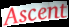
Ascent